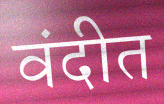
वंदीत